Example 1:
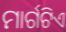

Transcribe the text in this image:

ମାର୍ଗଟିଏ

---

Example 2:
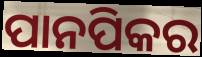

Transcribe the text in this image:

ପାନପିକର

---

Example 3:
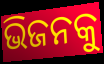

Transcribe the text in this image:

ଭିଜନକୁ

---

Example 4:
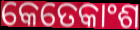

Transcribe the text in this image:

କେତେକାଂଶ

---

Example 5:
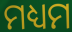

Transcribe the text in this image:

ମଧ୍ୟମ